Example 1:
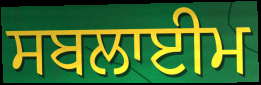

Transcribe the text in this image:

ਸਬਲਾਈਮ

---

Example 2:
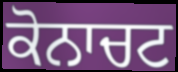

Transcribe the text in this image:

ਕੋਨਾਚਟ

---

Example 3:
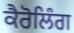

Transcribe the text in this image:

ਕੈਰੋਲਿੰਗ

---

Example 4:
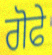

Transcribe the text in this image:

ਗੋਫੇ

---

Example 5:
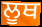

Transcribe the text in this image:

ਲੂਥ